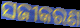
ସଜୀକରଣ